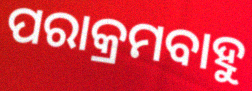
ପରାକ୍ରମବାହୁ